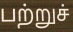
பற்றுச்